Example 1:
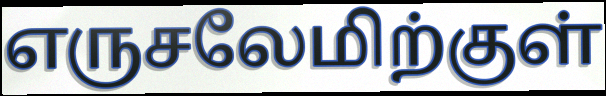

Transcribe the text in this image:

எருசலேமிற்குள்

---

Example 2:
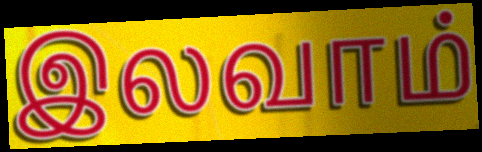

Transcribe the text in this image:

இலவாம்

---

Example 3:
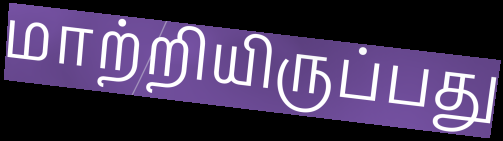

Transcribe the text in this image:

மாற்றியிருப்பது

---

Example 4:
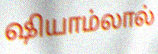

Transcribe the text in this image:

ஷியாம்லால்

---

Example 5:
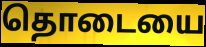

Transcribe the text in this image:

தொடையை